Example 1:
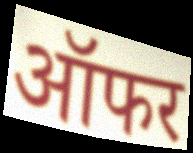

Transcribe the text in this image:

ऑफर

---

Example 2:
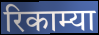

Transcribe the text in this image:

रिकाम्या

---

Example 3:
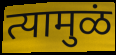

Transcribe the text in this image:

त्यामुळं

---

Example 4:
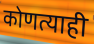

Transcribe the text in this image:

कोणत्याही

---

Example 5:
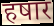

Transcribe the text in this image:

हषार